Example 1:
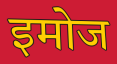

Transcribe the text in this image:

इमोज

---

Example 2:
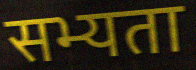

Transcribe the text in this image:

सभ्यता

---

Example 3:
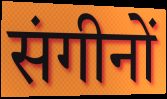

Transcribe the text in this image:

संगीनों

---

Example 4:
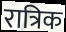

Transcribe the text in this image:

रात्रिक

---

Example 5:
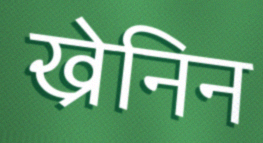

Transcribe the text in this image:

ख्रेनिन